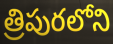
త్రిపురలోని